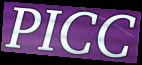
PICC